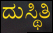
ದುಸ್ಥಿತಿ